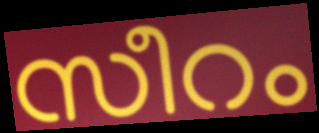
സീറം